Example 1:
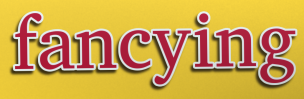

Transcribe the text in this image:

fancying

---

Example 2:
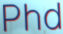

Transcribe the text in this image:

Phd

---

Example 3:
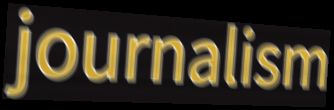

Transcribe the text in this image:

journalism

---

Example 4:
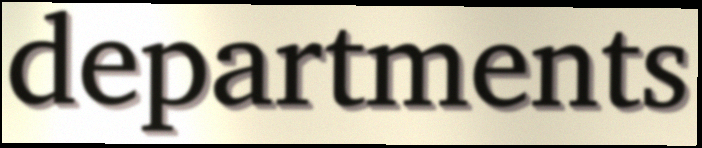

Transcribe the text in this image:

departments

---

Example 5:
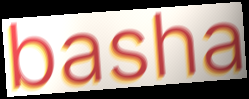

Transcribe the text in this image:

basha